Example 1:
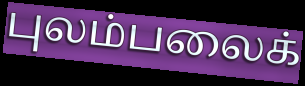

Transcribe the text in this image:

புலம்பலைக்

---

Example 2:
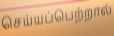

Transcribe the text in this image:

செய்யப்பெற்றால்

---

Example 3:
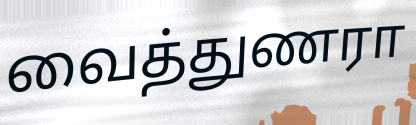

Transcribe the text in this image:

வைத்துணரா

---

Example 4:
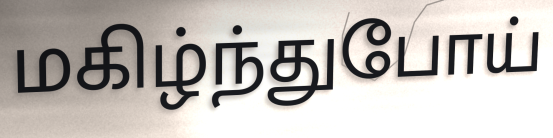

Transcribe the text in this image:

மகிழ்ந்துபோய்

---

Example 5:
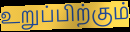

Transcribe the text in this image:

உறுப்பிற்கும்